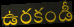
ఉరకండీ